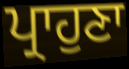
ਪ੍ਰਾਹੁਣਾ